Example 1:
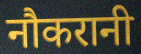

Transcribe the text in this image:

नौकरानी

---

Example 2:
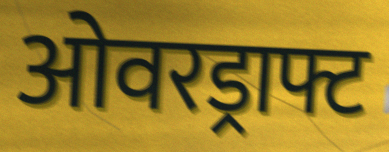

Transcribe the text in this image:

ओवरड्राफ्ट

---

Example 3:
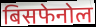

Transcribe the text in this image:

बिसफेनोल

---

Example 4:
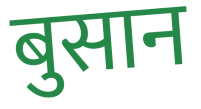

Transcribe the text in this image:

बुसान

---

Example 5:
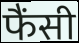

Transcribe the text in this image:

फैंसी